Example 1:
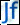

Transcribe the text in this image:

Jf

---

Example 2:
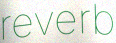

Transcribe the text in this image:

reverb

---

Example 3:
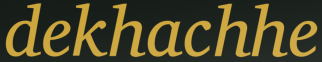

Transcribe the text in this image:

dekhachhe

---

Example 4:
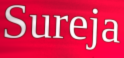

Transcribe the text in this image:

Sureja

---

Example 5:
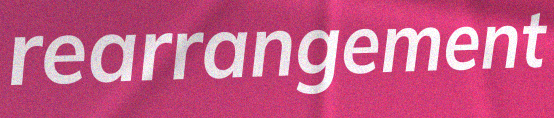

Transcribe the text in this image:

rearrangement